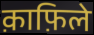
क़ाफ़िले